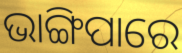
ଭାଙ୍ଗିପାରେ